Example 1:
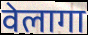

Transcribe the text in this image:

वेलागा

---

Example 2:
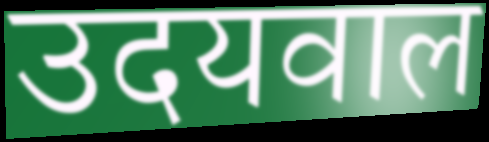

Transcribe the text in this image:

उदयवाल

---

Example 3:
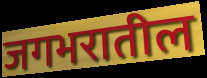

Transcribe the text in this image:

जगभरातील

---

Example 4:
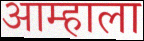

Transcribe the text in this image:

आम्हाला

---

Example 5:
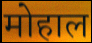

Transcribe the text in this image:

मोहाल